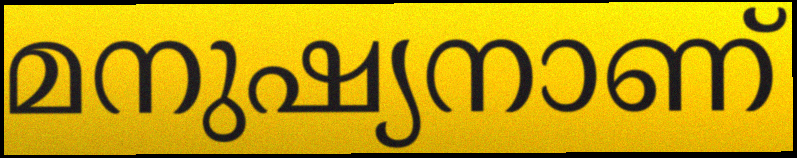
മനുഷ്യനാണ്